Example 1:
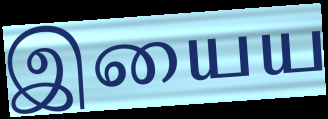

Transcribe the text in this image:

இயைய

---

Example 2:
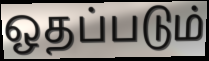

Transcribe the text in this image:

ஒதப்படும்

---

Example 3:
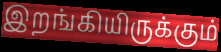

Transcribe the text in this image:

இறங்கியிருக்கும்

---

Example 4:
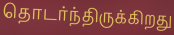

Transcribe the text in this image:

தொடர்ந்திருக்கிறது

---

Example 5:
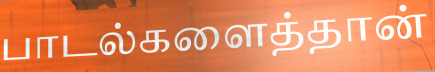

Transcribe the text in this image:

பாடல்களைத்தான்